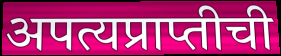
अपत्यप्राप्तीची